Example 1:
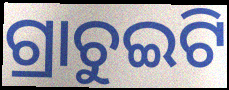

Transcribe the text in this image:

ଗ୍ରାଚୁଇଟି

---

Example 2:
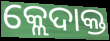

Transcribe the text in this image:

କ୍ଲେଦାକ୍ତ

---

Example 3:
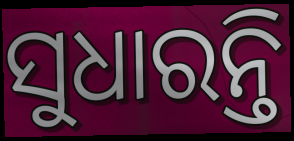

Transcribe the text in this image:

ସୁଧାରନ୍ତି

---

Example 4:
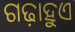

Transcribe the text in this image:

ଗଢ଼ାହୁଏ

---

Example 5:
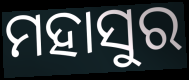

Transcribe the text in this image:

ମହାସୁର